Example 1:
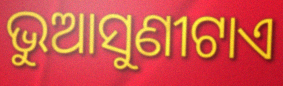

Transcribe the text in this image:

ଭୁଆସୁଣୀଟାଏ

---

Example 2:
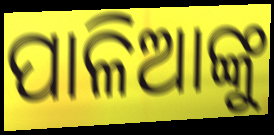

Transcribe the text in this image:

ପାଳିଆଙ୍କୁ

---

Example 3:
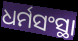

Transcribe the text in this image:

ଧର୍ମସଂସ୍ଥା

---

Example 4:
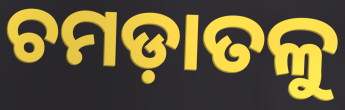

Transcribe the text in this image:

ଚମଡ଼ାତଳୁ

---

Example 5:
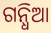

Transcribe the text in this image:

ଗନ୍ଧିଆ